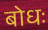
बोधः